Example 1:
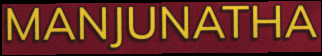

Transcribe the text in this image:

MANJUNATHA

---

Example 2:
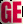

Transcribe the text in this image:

GE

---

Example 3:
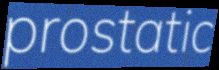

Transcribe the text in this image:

prostatic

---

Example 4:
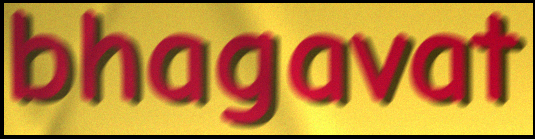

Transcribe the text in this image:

bhagavat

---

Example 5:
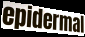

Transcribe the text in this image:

epidermal